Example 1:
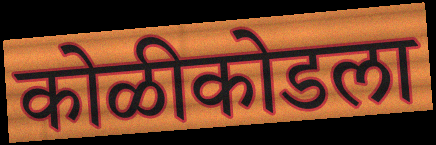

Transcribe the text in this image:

कोळीकोडला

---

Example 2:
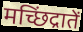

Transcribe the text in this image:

मच्छिंद्रातें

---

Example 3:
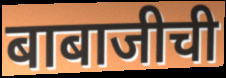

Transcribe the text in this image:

बाबाजीची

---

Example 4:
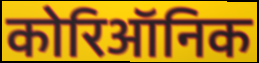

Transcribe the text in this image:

कोरिऑनिक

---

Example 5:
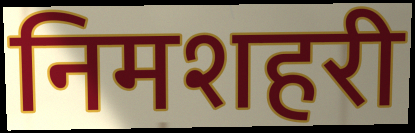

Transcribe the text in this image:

निमशहरी